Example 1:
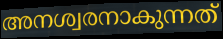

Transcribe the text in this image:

അനശ്വരനാകുന്നത്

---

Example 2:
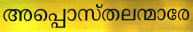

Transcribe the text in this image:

അപ്പൊസ്തലന്മാരേ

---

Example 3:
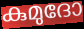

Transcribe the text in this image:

കുമുദോ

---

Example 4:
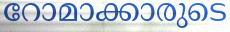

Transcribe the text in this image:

റോമാക്കാരുടെ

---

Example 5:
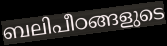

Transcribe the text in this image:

ബലിപീഠങ്ങളുടെ